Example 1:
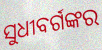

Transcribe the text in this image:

ସୁଧୀବର୍ଗଙ୍କର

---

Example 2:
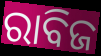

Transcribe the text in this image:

ରାବିଜ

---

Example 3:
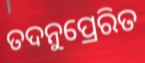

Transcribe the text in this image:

ତଦନୁପ୍ରେରିତ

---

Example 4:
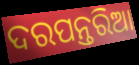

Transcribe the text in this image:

ଦରପନ୍ତରିଆ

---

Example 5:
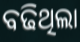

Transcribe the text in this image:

ବଢିଥିଲା